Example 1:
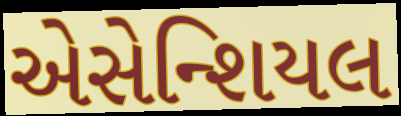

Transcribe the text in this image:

એસેન્શિયલ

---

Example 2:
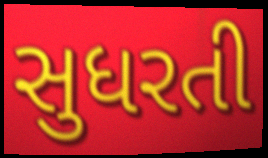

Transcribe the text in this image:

સુધરતી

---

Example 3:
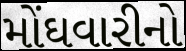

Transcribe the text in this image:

મોંઘવારીનો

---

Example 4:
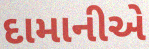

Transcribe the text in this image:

દામાનીએ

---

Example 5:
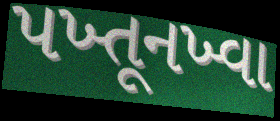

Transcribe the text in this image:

પખ્તૂનખ્વા